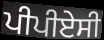
ਪੀਪੀਏਸੀ